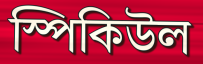
স্পিকিউল